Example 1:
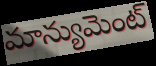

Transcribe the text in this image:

మాన్యుమెంట్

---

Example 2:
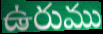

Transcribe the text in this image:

ఉరుము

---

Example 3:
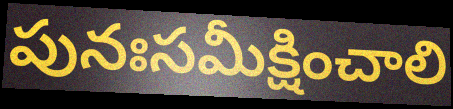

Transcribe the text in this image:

పునఃసమీక్షించాలి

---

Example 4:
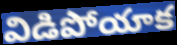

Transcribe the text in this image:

విడిపోయాక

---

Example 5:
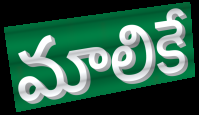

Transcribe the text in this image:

మాలికే